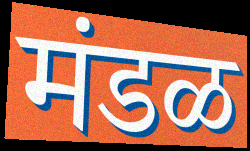
मंडळ